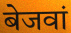
बेजवां